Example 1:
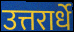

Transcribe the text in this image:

उत्तरार्धे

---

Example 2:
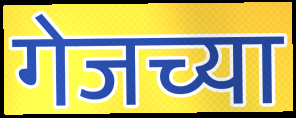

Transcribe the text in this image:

गेजच्या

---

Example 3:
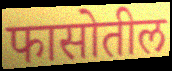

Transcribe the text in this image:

फासोतील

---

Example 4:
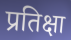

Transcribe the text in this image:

प्रतिक्षा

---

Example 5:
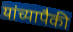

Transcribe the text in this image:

यांच्यापैकी